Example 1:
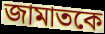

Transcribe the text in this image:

জামাতকে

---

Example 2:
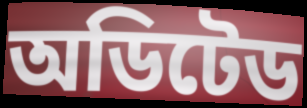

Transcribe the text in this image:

অডিটেড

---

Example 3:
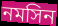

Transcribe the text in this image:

নমসিন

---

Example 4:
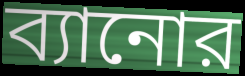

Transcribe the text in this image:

ব্যানোর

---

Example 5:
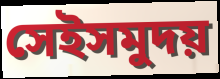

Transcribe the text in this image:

সেইসমুদয়